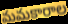
మమకారాల